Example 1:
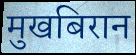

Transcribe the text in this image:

मुखबिरान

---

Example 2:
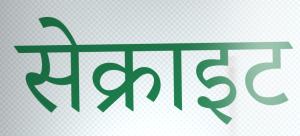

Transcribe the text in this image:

सेक्राइट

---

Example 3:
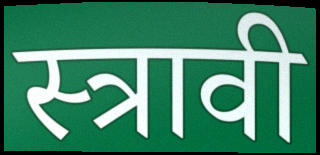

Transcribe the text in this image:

स्त्रावी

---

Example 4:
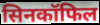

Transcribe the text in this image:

सिनकॉफिल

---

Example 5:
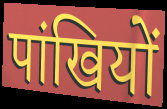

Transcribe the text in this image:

पांखियों